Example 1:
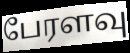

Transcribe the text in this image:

பேரளவு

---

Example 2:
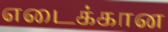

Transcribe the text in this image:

எடைக்கான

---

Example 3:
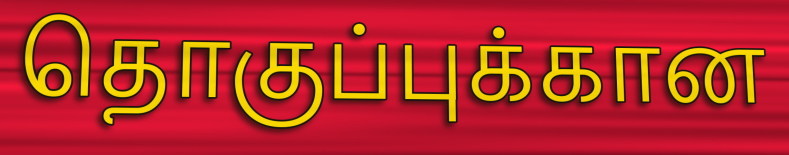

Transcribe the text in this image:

தொகுப்புக்கான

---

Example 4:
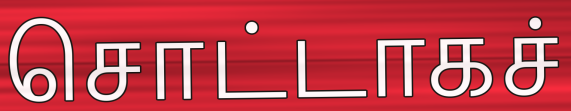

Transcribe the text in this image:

சொட்டாகச்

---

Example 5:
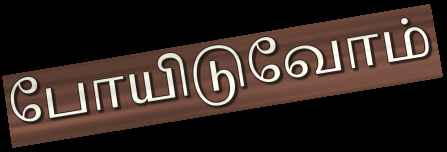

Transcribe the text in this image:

போயிடுவோம்